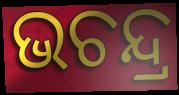
ଭଚନ୍ଦ୍ର